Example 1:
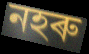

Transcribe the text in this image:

নহৰু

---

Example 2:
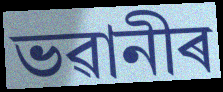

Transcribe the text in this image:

ভৱানীৰ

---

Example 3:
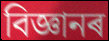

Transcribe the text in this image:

বিজ্ঞানৰ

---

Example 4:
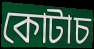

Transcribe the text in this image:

কোটাচ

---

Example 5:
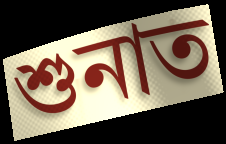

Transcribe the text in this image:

শুনাত